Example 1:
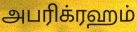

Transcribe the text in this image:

அபரிக்ரஹம்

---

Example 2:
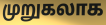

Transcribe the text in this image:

முறுகலாக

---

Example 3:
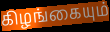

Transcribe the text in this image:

கிழங்கையும்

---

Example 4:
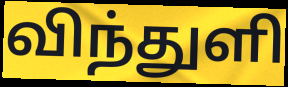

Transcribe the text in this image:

விந்துளி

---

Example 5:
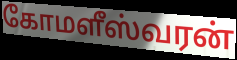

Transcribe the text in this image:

கோமளீஸ்வரன்